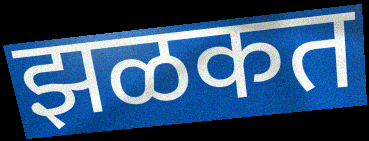
झळकत